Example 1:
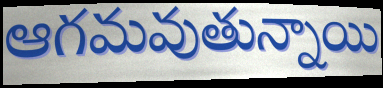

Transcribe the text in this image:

ఆగమవుతున్నాయి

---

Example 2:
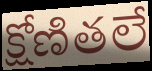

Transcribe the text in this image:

క్షోణితలే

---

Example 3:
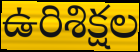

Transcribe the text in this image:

ఉరిశిక్షల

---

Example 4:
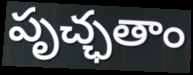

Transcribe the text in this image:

పృచ్ఛతాం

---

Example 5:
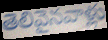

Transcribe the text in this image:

తెలివైనవాళ్లు